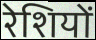
रेशियों